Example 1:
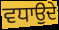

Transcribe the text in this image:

ਵਧਾਉੁਂਦੇ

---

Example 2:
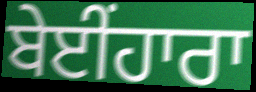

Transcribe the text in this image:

ਬੇਈਂਹਾਰਾ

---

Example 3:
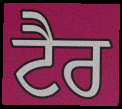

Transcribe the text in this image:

ਟੈਰ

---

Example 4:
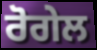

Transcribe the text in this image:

ਰੋਗੇਲ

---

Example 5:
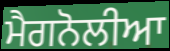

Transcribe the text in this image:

ਮੈਗਨੋਲੀਆ